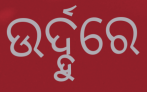
ଉର୍ଦ୍ଦୁରେ